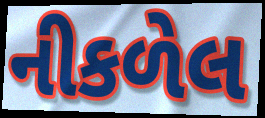
નીકળેલ